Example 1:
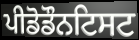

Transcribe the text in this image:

ਪੀਡੋਡੌਨਟਿਸਟ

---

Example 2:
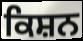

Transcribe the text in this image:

ਕਿਸ਼ਨ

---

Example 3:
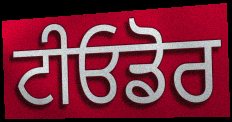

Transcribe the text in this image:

ਟੀਓਡੋਰ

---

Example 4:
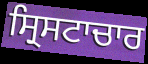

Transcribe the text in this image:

ਸ੍ਰਿਸਟਾਚਾਰ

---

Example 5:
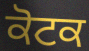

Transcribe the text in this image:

ਕੋਟਕ